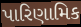
પારિણામિક